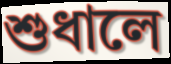
শুধালে